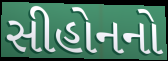
સીહોનનો